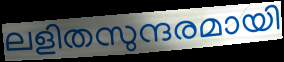
ലളിതസുന്ദരമായി